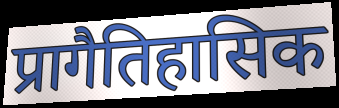
प्रागैतिहासिक